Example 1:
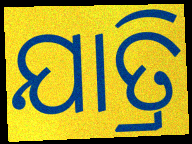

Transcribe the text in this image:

ଯାତ୍ରି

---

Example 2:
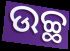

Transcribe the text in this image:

ଉଚ୍ଛ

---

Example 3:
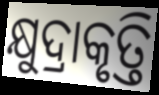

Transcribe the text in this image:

କ୍ଷୁଦ୍ରାକୃତ୍ତି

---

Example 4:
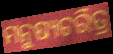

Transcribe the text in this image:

ମନୁଷ୍ୟଚରିତ୍ର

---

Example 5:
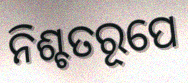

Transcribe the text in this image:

ନିଶ୍ଚତରୂପେ